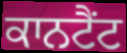
ਕਾਨਟੈਂਟ